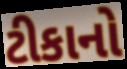
ટીકાનો